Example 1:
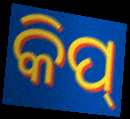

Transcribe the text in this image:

କିପ୍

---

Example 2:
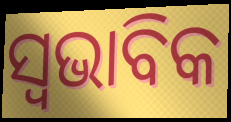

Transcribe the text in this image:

ସ୍ଵଭାବିକ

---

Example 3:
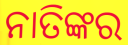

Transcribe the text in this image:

ନାତିଙ୍କର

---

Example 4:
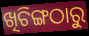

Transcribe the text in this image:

ଖିଚିଙ୍ଗଠାରୁ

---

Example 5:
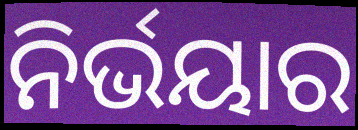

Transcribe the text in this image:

ନିର୍ଭୟାର